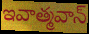
ఇవాత్మవాన్